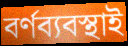
বর্ণব্যবস্থাই